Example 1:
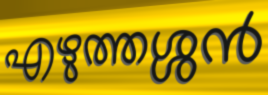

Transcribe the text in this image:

എഴുത്തശ്ശൻ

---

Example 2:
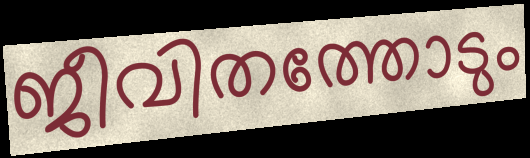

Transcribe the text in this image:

ജീവിതത്തോടും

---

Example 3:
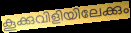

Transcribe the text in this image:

കൂക്കുവിളിയിലേക്കും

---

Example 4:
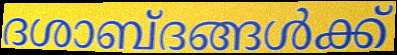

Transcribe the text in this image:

ദശാബ്ദങ്ങൾക്ക്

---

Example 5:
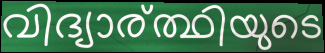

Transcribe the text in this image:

വിദ്യാര്ത്ഥിയുടെ